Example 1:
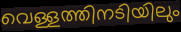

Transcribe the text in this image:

വെള്ളത്തിനടിയിലും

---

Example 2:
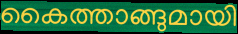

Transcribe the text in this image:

കൈത്താങ്ങുമായി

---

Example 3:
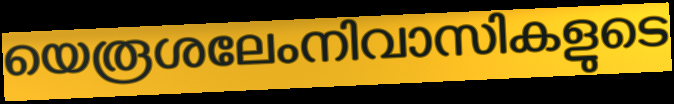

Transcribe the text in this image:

യെരൂശലേംനിവാസികളുടെ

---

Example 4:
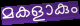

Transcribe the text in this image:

മകളാകും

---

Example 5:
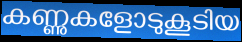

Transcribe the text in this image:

കണ്ണുകളോടുകൂടിയ